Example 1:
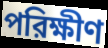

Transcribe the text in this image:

পরিক্ষীণ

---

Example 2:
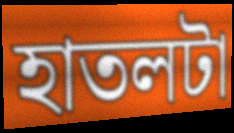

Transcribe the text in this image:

হাতলটা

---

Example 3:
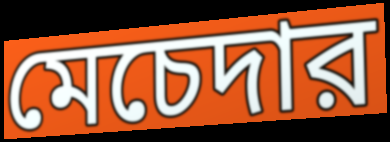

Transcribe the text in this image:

মেচেদার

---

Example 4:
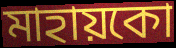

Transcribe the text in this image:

মাহায়কো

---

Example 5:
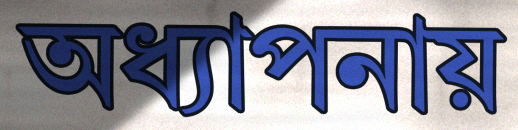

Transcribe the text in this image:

অধ্যাপনায়